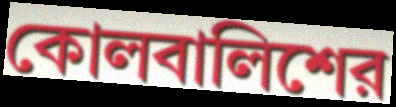
কোলবালিশের